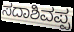
ಸದಾಶಿವಪ್ಪ